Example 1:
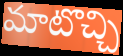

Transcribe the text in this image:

మాటొచ్చి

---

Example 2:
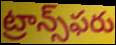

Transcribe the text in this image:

ట్రాన్స్‌ఫరు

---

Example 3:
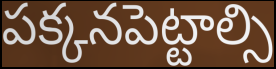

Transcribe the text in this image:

పక్కనపెట్టాల్సి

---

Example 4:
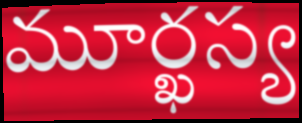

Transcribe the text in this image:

మూర్ఖస్య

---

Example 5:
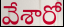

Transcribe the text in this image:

వేశారో